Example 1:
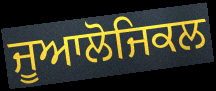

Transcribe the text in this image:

ਜੂਆਲੋਜਿਕਲ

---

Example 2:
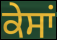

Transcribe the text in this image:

ਕੇਸਾਂ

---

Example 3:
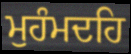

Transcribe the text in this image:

ਮੁਹੰਮਦਹਿ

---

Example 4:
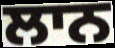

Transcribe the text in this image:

ਲਾਨ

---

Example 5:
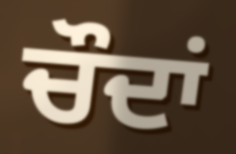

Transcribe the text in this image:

ਚੌਦਾਂ